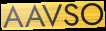
AAVSO